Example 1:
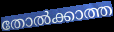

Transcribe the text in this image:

തോൽക്കാത്ത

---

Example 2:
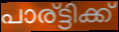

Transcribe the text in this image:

പാര്ട്ടിക്ക്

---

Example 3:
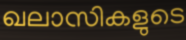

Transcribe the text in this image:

ഖലാസികളുടെ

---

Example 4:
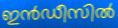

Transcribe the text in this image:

ഇൻഡീസിൽ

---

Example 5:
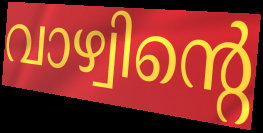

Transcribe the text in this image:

വാഴ്വിന്റെ